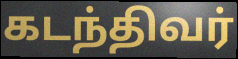
கடந்திவர்